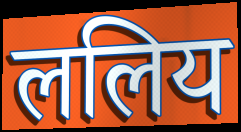
ललिय